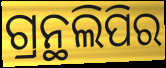
ଗ୍ରନ୍ଥଲିପିର